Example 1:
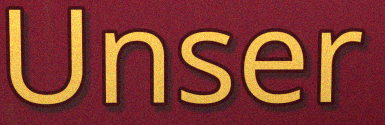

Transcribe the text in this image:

Unser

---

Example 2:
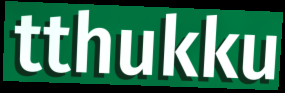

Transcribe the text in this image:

tthukku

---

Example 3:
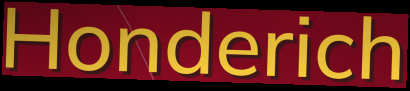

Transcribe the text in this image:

Honderich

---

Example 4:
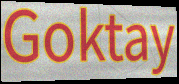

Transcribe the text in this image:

Goktay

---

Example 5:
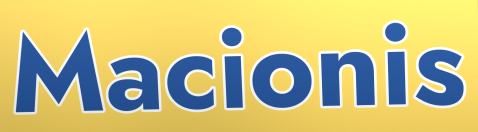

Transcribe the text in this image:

Macionis